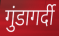
गुंडागर्दी